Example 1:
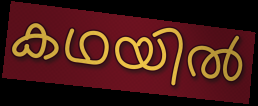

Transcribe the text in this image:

കഥയിൽ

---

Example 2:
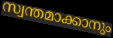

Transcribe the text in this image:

സ്വന്തമാക്കാനും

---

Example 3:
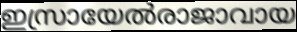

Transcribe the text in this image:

ഇസ്രായേൽരാജാവായ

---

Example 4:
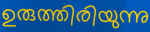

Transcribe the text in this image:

ഉരുത്തിരിയുന്നു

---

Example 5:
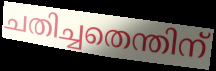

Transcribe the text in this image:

ചതിച്ചതെന്തിന്